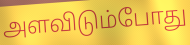
அளவிடும்போது